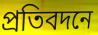
প্রতিবদনে